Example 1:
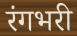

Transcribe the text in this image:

रंगभरी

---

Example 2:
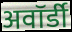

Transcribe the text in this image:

अवॉर्डी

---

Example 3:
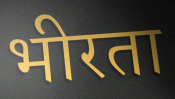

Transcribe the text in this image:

भीरता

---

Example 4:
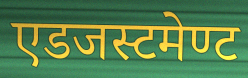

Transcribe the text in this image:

एडजस्टमेण्ट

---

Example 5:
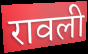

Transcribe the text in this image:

रावली